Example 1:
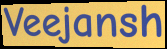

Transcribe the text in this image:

Veejansh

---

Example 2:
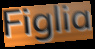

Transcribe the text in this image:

Figlia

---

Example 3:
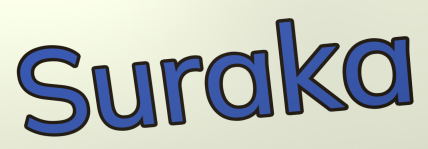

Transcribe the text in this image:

Suraka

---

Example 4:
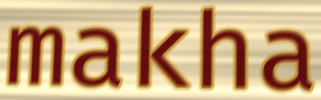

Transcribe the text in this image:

makha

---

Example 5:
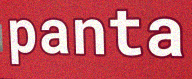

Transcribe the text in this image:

panta